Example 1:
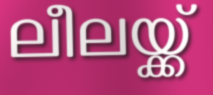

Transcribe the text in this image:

ലീലയ്ക്ക്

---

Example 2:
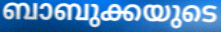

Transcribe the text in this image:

ബാബുക്കയുടെ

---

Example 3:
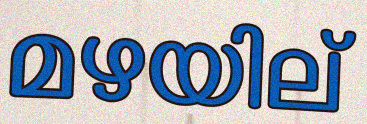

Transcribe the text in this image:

മഴയില്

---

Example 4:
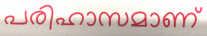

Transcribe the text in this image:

പരിഹാസമാണ്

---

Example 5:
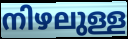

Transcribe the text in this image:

നിഴലുള്ള